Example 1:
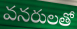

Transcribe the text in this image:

వనరులతో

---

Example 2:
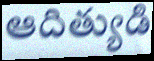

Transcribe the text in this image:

ఆదిత్యుడి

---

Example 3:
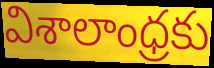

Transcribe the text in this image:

విశాలాంధ్రకు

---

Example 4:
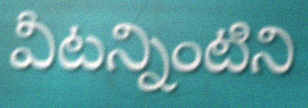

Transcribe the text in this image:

వీటన్నింటిని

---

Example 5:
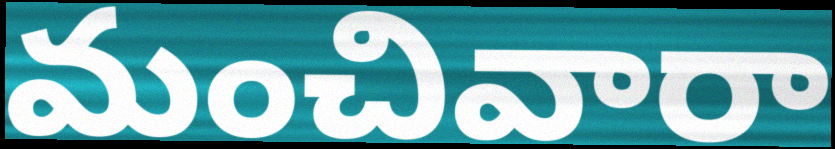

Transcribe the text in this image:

మంచివారా